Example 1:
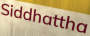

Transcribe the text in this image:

Siddhattha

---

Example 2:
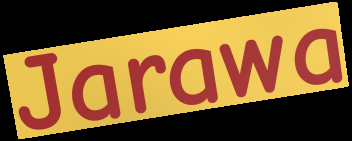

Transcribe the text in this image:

Jarawa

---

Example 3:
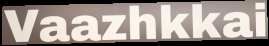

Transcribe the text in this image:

Vaazhkkai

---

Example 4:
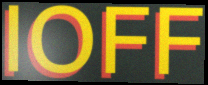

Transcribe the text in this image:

IOFF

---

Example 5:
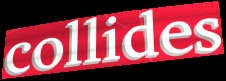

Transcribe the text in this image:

collides